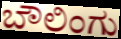
ಬೌಲಿಂಗು